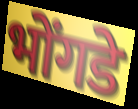
भोंगडे